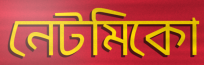
নেটমিকো